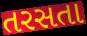
તરસતા